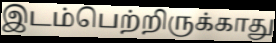
இடம்பெற்றிருக்காது